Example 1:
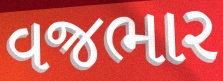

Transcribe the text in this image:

વજ્રભાર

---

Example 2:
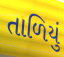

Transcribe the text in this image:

તાળિયું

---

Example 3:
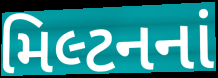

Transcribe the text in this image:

મિલ્ટનનાં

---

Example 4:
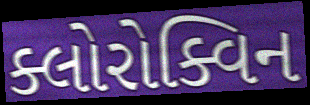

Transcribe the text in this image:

ક્લોરોક્વિન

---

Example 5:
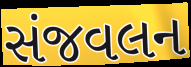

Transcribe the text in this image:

સંજવલન